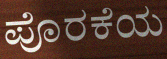
ಪೊರಕೆಯ